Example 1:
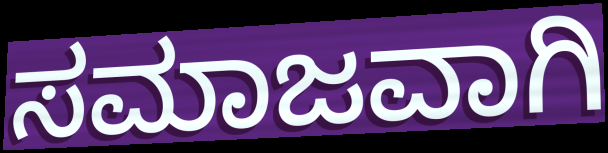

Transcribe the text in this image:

ಸಮಾಜವಾಗಿ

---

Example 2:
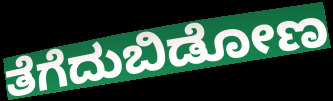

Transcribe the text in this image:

ತೆಗೆದುಬಿಡೋಣ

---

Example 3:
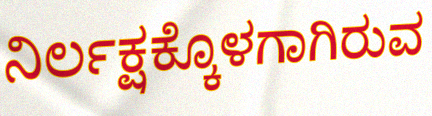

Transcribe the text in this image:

ನಿರ್ಲಕ್ಷಕ್ಕೊಳಗಾಗಿರುವ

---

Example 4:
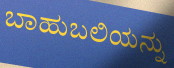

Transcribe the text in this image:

ಬಾಹುಬಲಿಯನ್ನು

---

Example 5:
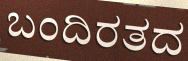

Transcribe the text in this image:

ಬಂದಿರತದ